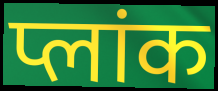
प्लांक